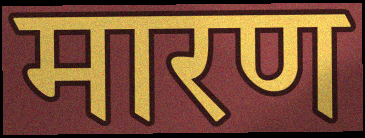
मारण